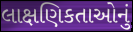
લાક્ષણિકતાઓનું